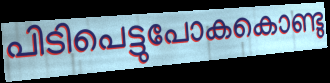
പിടിപെട്ടുപോകകൊണ്ടു